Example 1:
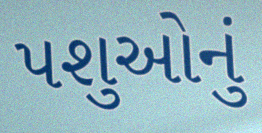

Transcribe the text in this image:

પશુઓનું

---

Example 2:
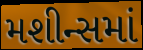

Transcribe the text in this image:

મશીન્સમાં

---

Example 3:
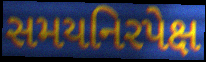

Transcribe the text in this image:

સમયનિરપેક્ષ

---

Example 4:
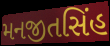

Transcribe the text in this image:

મનજીતસિંહ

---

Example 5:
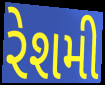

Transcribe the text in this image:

રેશમી